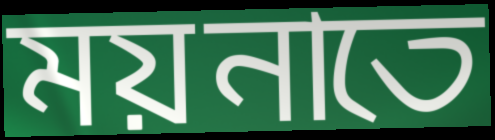
ময়নাতে